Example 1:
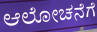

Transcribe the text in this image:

ಆಲೋಚನೆಗೆ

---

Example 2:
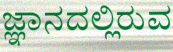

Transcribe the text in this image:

ಜ್ಞಾನದಲ್ಲಿರುವ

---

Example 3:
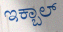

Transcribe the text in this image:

ಇಕ್ಬಾಲ್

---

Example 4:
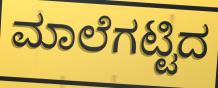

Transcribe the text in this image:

ಮಾಲೆಗಟ್ಟಿದ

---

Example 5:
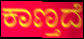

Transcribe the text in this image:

ಕಾಣ್ತದೆ